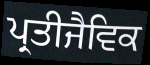
ਪ੍ਰਤੀਜੈਵਿਕ